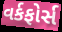
વર્કફોર્સ